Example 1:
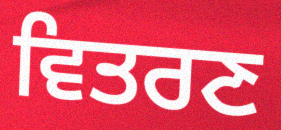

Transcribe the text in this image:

ਵਿਤਰਣ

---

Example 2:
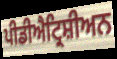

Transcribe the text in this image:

ਪੀਡੀਐਟ੍ਰਿਸ਼ੀਅਨ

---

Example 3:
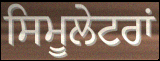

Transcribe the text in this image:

ਸਿਮੂਲੇਟਰਾਂ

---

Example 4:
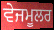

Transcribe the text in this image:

ਵੇਜਮੂਲਰ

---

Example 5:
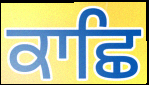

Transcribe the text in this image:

ਕਾਛਿ